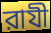
রাযী